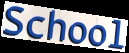
School